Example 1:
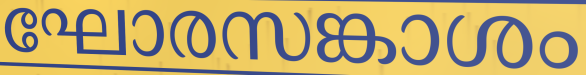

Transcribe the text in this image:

ഘോരസങ്കാശം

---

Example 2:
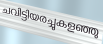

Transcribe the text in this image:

ചവിട്ടിയരച്ചുകളഞ്ഞു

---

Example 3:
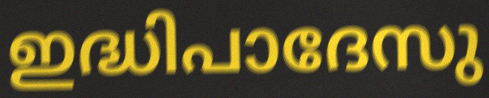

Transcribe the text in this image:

ഇദ്ധിപാദേസു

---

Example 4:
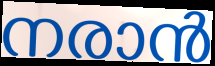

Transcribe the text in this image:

നരാൻ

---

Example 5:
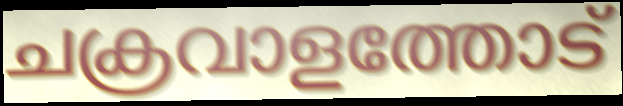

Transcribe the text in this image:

ചക്രവാളത്തോട്